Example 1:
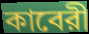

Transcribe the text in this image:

কাবেরী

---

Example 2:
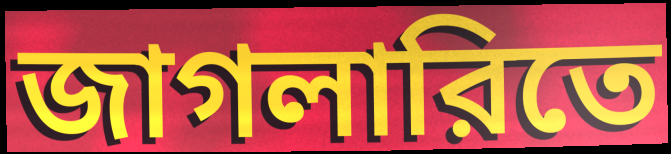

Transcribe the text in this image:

জাগলারিতে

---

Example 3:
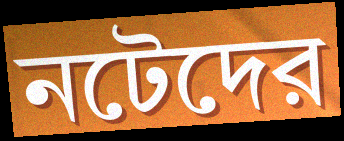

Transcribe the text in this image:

নটেদের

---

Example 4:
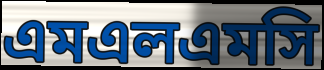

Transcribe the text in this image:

এমএলএমসি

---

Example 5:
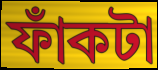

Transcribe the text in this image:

ফাঁকটা